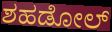
ಶಹಡೋಲ್